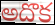
అదొక